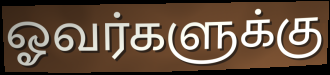
ஓவர்களுக்கு